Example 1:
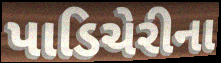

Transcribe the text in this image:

પાડિચેરીના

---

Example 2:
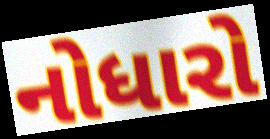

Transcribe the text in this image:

નોધારો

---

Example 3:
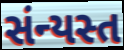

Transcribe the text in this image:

સંન્યસ્ત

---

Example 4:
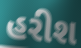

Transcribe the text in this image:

હરીશ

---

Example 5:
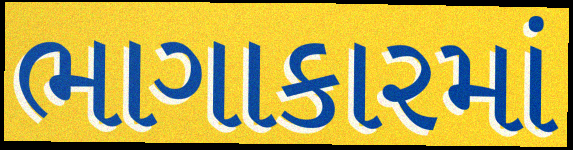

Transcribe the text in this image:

ભાગાકારમાં